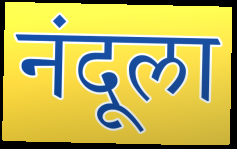
नंदूला